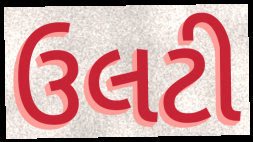
ઉલટી